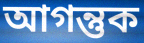
আগন্তুক